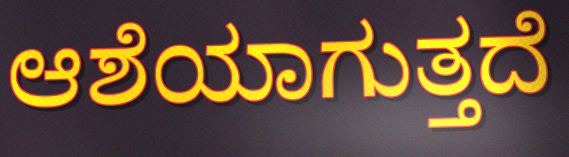
ಆಶೆಯಾಗುತ್ತದೆ